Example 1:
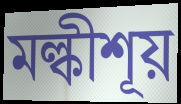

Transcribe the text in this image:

মল্কীশূয়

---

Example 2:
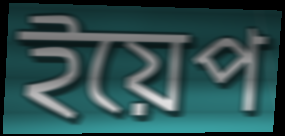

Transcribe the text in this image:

ইয়েপ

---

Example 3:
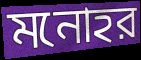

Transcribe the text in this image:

মনোহর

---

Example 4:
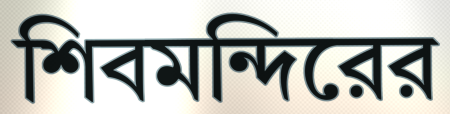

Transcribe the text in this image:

শিবমন্দিরের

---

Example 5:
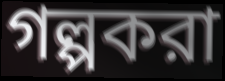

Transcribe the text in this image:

গল্পকরা